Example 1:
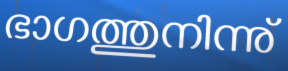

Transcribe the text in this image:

ഭാഗത്തുനിന്നു്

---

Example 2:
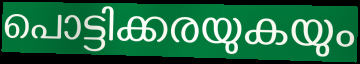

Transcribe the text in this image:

പൊട്ടിക്കരയുകയും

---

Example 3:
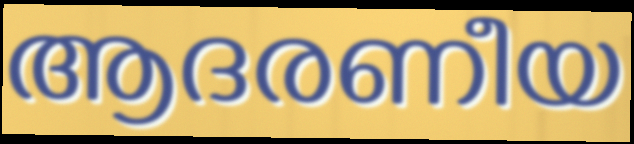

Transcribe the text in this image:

ആദരണീയ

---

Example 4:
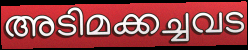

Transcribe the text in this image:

അടിമക്കച്ചവട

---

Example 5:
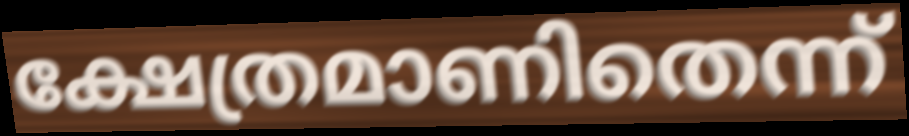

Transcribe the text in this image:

ക്ഷേത്രമാണിതെന്ന്